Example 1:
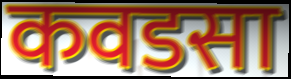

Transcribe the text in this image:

कवडसा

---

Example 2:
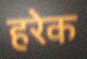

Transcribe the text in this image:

हरेक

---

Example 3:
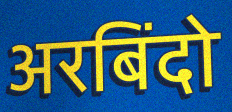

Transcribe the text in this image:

अरबिंदो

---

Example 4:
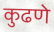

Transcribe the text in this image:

कुढणे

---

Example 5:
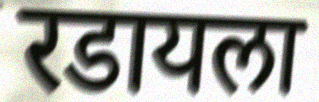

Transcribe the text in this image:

रडायला